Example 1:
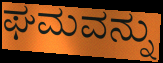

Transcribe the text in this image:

ಘಮವನ್ನು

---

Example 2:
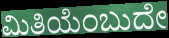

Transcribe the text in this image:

ಮಿತಿಯೆಂಬುದೇ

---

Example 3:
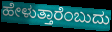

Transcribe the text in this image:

ಹೇಳುತ್ತಾರೆಂಬುದು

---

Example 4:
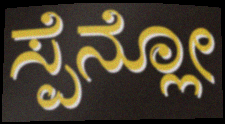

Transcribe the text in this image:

ಸ್ಪೆನ್ಲೋ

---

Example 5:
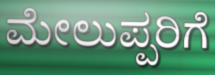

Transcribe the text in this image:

ಮೇಲುಪ್ಪರಿಗೆ